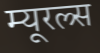
म्यूरल्स